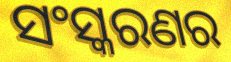
ସଂସ୍କରଣର